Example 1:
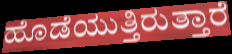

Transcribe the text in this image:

ಹೊಡೆಯುತ್ತಿರುತ್ತಾರೆ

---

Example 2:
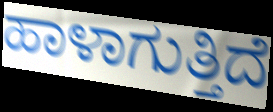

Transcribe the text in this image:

ಹಾಳಾಗುತ್ತಿದೆ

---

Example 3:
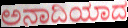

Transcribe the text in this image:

ಅನಾದಿಯಾದ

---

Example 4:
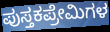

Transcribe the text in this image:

ಪುಸ್ತಕಪ್ರೇಮಿಗಳ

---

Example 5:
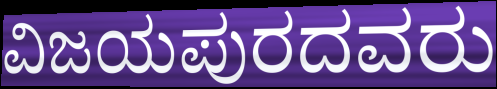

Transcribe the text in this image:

ವಿಜಯಪುರದವರು